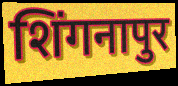
शिंगनापुर